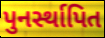
પુનર્સ્થાપિત